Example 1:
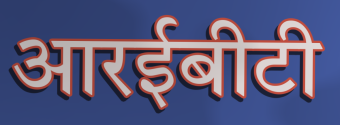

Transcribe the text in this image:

आरईबीटी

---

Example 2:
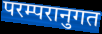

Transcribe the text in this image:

परम्परानुगत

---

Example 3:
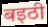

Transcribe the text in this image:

बइठी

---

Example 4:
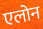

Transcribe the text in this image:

एलोन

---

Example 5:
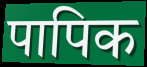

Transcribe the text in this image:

पापिक